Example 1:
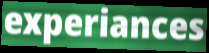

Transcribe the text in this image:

experiances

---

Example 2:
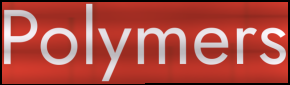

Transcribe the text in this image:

Polymers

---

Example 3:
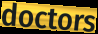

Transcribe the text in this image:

doctors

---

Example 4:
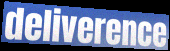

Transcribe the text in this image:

deliverence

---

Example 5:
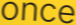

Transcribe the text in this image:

once